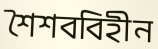
শৈশববিহীন